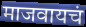
माजवायचं